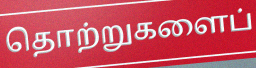
தொற்றுகளைப்